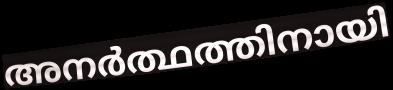
അനർത്ഥത്തിനായി